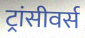
ट्रांसीवर्स